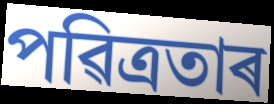
পৱিত্ৰতাৰ